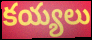
కయ్యలు